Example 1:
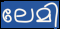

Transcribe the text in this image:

ലേമി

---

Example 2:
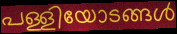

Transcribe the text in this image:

പള്ളിയോടങ്ങൾ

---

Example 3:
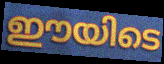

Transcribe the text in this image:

ഈയിടെ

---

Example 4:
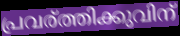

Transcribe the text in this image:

പ്രവര്ത്തിക്കുവിന്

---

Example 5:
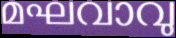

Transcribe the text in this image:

മഘവാവു